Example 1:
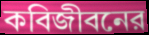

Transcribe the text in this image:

কবিজীবনের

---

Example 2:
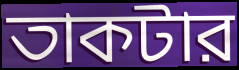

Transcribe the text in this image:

তাকটার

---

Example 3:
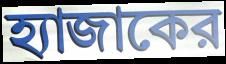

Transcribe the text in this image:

হ্যাজাকের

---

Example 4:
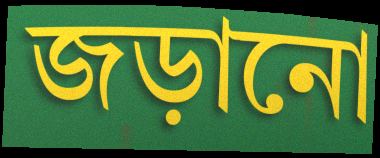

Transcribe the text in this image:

জড়ানো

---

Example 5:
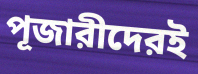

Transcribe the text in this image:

পূজারীদেরই